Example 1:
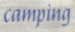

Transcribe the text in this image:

camping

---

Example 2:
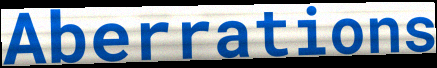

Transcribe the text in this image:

Aberrations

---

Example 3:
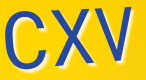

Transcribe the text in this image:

CXV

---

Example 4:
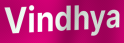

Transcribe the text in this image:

Vindhya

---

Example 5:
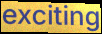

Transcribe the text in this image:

exciting